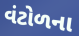
વંટોળના